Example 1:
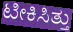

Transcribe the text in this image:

ಟೀಕಿಸಿತ್ತು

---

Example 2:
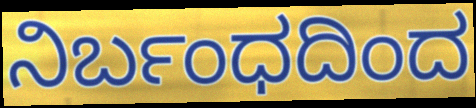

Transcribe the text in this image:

ನಿರ್ಬಂಧದಿಂದ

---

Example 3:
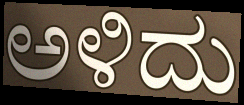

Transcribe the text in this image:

ಅಳಿದು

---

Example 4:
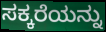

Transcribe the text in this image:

ಸಕ್ಕರೆಯನ್ನು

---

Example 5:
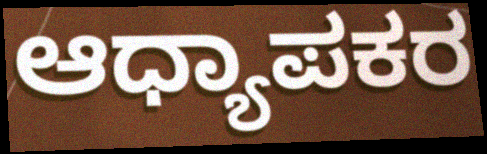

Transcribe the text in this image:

ಆಧ್ಯಾಪಕರ